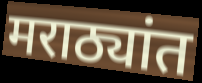
मराठ्यांत